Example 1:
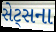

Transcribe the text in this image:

સેટ્સના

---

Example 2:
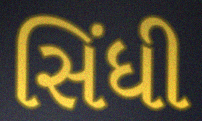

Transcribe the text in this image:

સિંધી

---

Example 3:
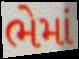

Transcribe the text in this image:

ભેમાં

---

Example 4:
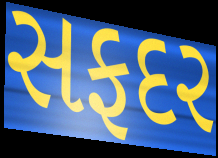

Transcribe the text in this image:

સફદર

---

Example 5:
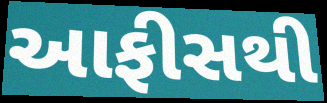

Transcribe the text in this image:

આફીસથી